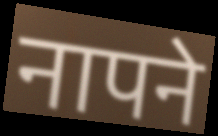
नापने